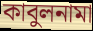
কাবুলনামা